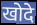
खोदे